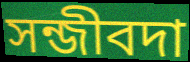
সন্জীবদা